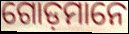
ଗୋଡ଼ମାନେ